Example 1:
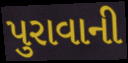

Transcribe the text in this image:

પુરાવાની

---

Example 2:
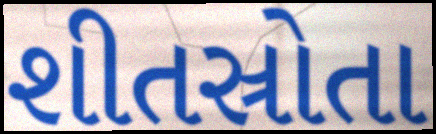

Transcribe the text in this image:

શીતસ્રોતા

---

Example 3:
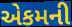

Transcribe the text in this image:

એકમની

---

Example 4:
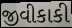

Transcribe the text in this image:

જીવીકાકી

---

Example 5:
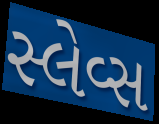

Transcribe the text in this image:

સ્લેવ્સ